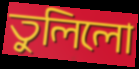
তুলিলো